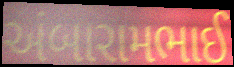
અંબારામભાઈ